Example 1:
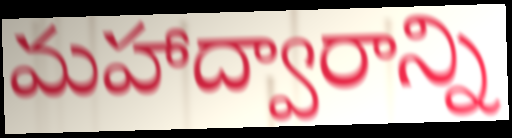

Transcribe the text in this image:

మహాద్వారాన్ని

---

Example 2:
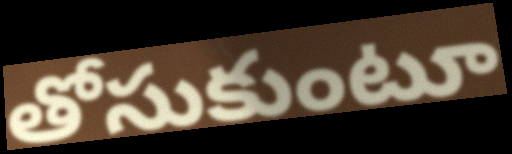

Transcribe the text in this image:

తోసుకుంటూ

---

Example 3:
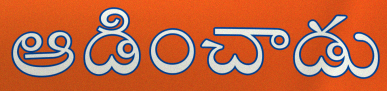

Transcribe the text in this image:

ఆడించాడు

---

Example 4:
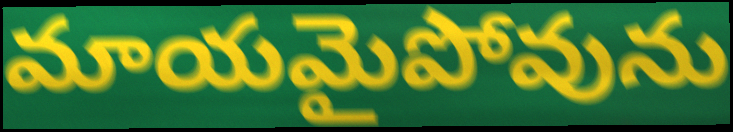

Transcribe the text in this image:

మాయమైపోవును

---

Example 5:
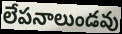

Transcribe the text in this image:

లేపనాలుండవు